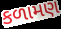
કળામણ